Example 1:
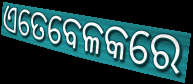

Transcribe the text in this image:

ଏତେବେଳକରେ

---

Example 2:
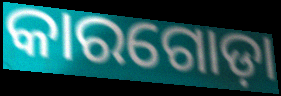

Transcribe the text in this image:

କାରଗୋଡ଼ା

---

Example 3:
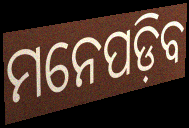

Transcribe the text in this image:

ମନେପଡ଼ିବ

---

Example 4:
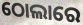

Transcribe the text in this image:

ଠୋଲାରେ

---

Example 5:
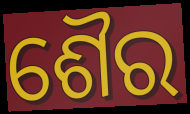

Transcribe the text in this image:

ଶୈର